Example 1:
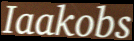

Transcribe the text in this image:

Iaakobs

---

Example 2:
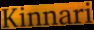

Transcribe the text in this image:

Kinnari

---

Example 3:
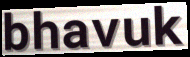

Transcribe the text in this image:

bhavuk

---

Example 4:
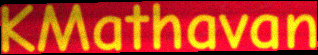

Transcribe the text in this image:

KMathavan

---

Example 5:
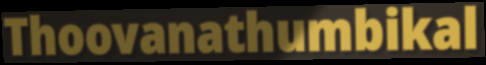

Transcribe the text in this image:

Thoovanathumbikal